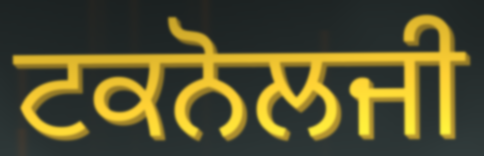
ਟਕਨੋਲਜੀ